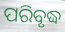
ପରିବୃଦ୍ଧ